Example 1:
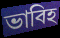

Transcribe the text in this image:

ভাবিহ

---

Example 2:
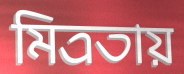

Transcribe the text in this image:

মিত্রতায়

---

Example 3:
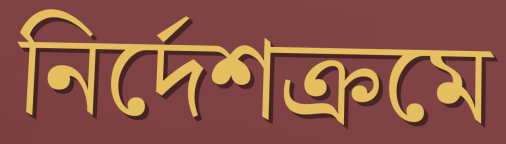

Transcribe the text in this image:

নির্দেশক্রমে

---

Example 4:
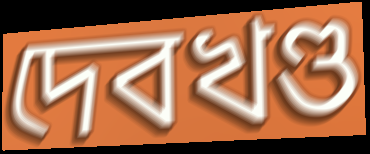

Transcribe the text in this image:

দেবখণ্ড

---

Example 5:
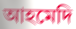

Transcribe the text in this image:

আহমেদি